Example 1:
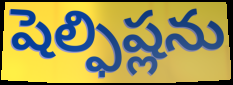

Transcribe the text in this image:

షెల్ఫిష్లను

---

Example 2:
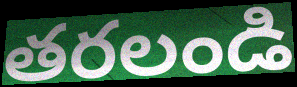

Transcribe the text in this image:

తరలండి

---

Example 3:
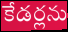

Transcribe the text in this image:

కేడర్లను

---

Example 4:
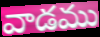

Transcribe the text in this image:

వాడము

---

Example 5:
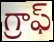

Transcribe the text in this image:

గ్రాఫ్